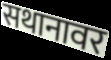
सथानावर